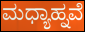
ಮಧ್ಯಾಹ್ನವೆ